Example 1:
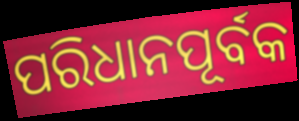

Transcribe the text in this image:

ପରିଧାନପୂର୍ବକ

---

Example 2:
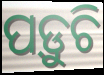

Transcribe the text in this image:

ପଡ଼ୁଚି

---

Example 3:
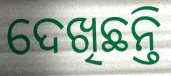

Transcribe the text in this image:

ଦେଖିଛନ୍ତି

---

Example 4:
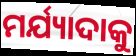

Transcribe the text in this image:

ମର୍ଯ୍ୟାଦାକୁ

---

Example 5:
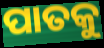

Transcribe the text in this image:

ପାତକୁ